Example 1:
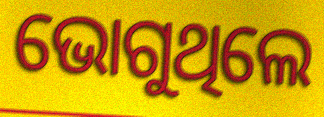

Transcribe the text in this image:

ଭୋଗୁଥିଲେ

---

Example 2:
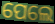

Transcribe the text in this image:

ପେଲେ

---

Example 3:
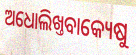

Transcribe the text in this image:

ଅଧୋଲିଖ୍ତବାକ୍ୟେଷୁ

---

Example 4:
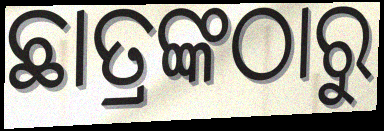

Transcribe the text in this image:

ଛାତ୍ରଙ୍କଠାରୁ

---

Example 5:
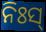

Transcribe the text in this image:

ନିଃସ୍